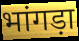
भांगड़ा